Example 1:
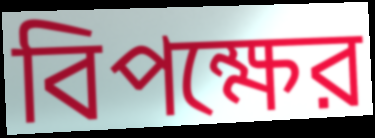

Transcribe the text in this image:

বিপক্ষের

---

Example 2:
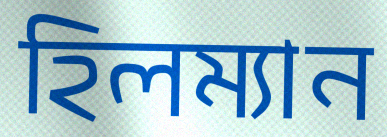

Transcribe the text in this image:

হিলম্যান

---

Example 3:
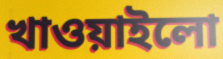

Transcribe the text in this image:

খাওয়াইলো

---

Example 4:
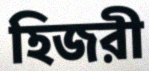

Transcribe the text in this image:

হিজরী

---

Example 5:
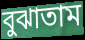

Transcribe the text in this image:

বুঝাতাম